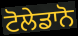
ਟੋਲੇਡਾਨੋ